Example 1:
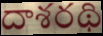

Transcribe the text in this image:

దాశరథి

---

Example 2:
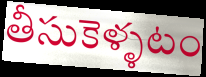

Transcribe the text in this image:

తీసుకెళ్ళటం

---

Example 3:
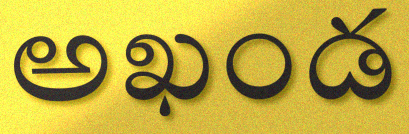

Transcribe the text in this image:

అఖండ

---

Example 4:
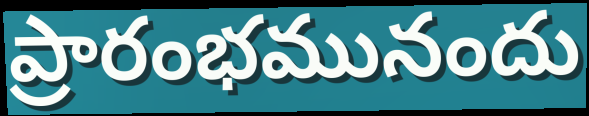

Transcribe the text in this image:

ప్రారంభమునందు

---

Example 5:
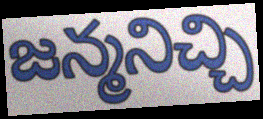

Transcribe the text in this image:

జన్మనిచ్చి